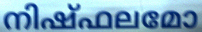
നിഷ്ഫലമോ